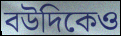
বউদিকেও